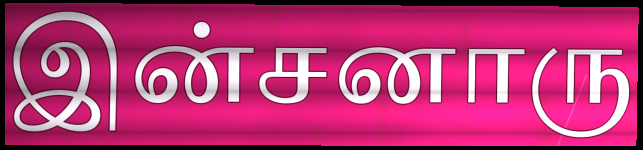
இன்சனாரு